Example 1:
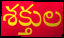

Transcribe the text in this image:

శక్తుల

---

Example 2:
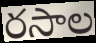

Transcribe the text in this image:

రసాల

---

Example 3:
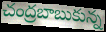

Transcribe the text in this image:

చంద్రబాబుకున్న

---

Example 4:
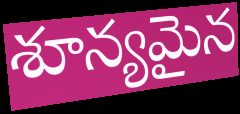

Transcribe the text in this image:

శూన్యమైన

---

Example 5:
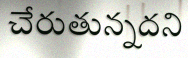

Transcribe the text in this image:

చేరుతున్నదని